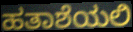
ಹತಾಶೆಯಲಿ